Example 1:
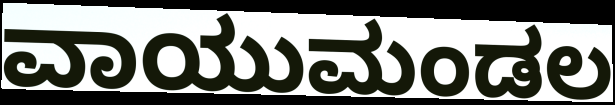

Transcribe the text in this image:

ವಾಯುಮಂಡಲ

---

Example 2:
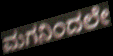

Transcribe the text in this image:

ಮಗನಿಂದಲೇ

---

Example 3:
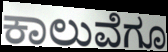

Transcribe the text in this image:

ಕಾಲುವೆಗೂ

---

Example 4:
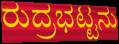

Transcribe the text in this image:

ರುದ್ರಭಟ್ಟನು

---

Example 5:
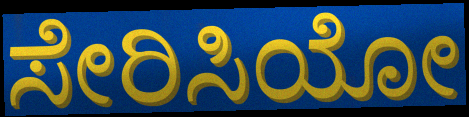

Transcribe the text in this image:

ಸೇರಿಸಿಯೋ